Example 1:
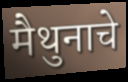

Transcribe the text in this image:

मैथुनाचे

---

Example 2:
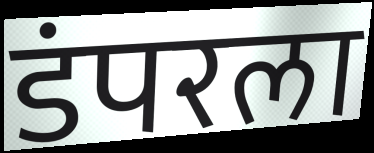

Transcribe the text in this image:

डंपरला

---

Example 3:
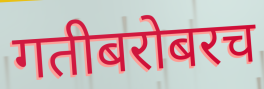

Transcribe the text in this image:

गतीबरोबरच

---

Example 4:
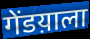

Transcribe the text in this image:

गेंडय़ाला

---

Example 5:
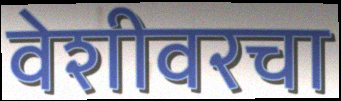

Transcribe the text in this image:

वेशीवरचा